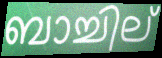
ബാച്ചില്